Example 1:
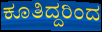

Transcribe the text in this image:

ಕೂತಿದ್ದರಿಂದ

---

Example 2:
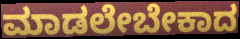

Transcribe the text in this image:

ಮಾಡಲೇಬೇಕಾದ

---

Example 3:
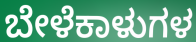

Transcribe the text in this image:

ಬೇಳೆಕಾಳುಗಳ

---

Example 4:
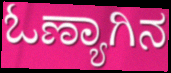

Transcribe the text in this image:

ಓಣ್ಯಾಗಿನ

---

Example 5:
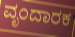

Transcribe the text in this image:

ವೃಂದಾರಕ